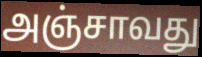
அஞ்சாவது